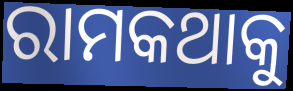
ରାମକଥାକୁ